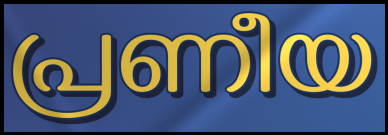
പ്രണീയ